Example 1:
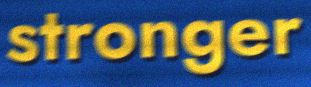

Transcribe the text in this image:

stronger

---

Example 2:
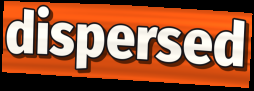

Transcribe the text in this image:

dispersed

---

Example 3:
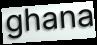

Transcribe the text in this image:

ghana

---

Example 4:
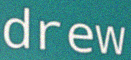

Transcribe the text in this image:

drew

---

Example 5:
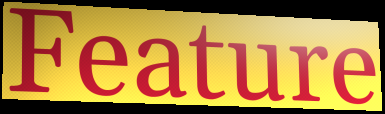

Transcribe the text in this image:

Feature